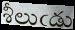
శీలుఁడు